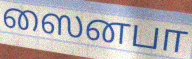
ஸைனபா